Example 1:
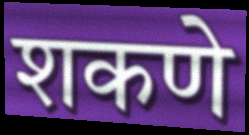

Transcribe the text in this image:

शकणे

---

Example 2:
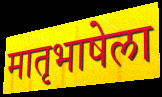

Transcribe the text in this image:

मातृभाषेला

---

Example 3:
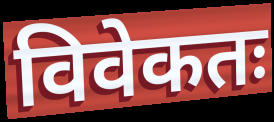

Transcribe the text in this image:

विवेकतः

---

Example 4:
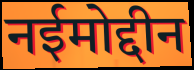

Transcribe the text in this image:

नईमोद्दीन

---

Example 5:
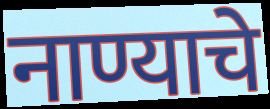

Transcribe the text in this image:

नाण्याचे